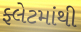
ફ્લેટમાંથી